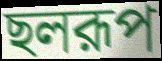
ছলরূপ